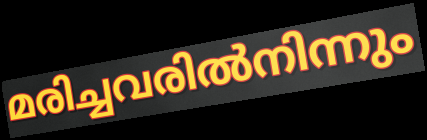
മരിച്ചവരിൽനിന്നും